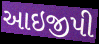
આઇજીપી